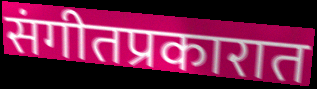
संगीतप्रकारात